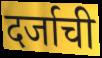
दर्जाची